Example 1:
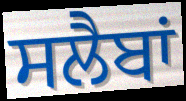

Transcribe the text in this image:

ਸਲੈਬਾਂ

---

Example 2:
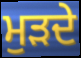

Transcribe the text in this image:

ਮੁਡ਼ਦੇ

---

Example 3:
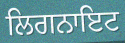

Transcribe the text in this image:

ਲਿਗਨਾਇਟ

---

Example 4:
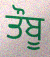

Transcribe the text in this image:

ਤੌਬੂ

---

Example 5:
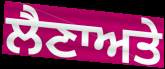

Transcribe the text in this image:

ਲੈਣਾਅਤੇ